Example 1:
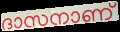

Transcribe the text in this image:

ദാസനാണ്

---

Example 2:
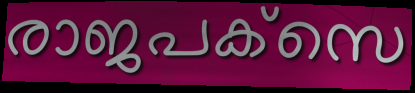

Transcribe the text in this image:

രാജപക്‌സെ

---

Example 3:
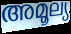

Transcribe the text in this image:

അമൂല്യ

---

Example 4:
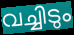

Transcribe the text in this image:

വച്ചിടും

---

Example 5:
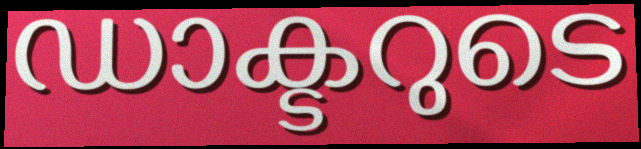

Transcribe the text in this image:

ഡാക്ടറുടെ